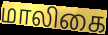
மாலிகை